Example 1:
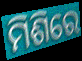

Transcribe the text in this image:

ମିଶିରେ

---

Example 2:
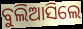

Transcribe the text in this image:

ବୁଲିଆସିଲେ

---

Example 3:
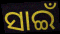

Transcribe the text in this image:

ସାଇଁ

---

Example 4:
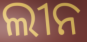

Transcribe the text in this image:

ଲୀନ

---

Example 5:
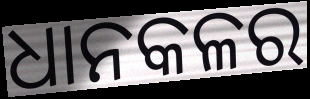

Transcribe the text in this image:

ଧାନକଳର